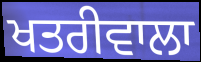
ਖਤਰੀਵਾਲਾ